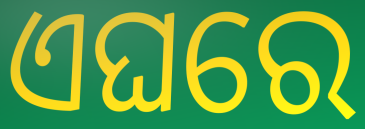
ଏଘରେ